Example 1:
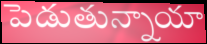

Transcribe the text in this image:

పెడుతున్నాయా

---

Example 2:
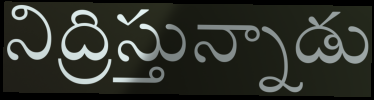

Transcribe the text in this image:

నిద్రిస్తున్నాడు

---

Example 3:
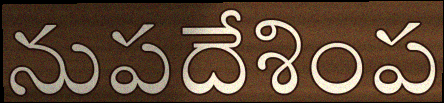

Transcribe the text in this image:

నుపదేశింప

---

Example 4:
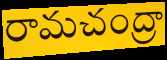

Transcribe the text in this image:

రామచంద్రా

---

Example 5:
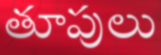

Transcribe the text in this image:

తూపులు